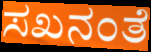
ಸಖನಂತೆ